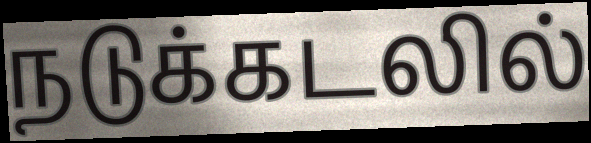
நடுக்கடலில்